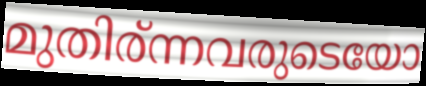
മുതിര്ന്നവരുടെയോ